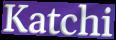
Katchi